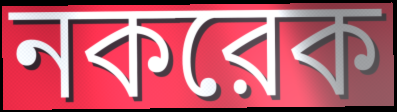
নকরেক